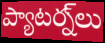
ప్యాటర్న్‌లు